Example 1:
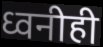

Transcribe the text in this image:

ध्वनीही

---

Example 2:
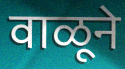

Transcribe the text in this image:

वाळूने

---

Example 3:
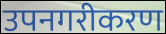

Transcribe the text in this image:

उपनगरीकरण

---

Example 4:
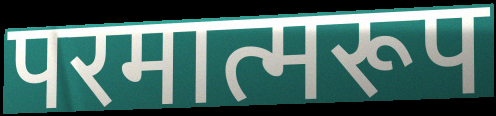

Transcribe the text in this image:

परमात्मरूप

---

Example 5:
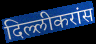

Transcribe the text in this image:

दिल्लीकरांस